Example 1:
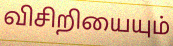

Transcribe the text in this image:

விசிறியையும்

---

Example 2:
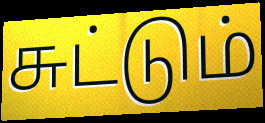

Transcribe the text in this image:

சுட்டும்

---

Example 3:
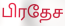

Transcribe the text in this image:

பிரதேச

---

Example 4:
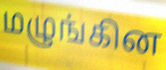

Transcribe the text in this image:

மழுங்கின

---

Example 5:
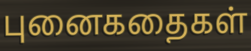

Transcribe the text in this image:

புனைகதைகள்